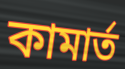
কামার্ত